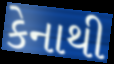
કેનાથી